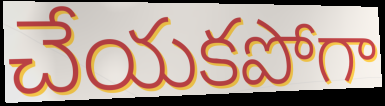
చేయకపోగా